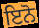
ਇਨੋ